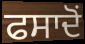
ਫਸਾਦੋਂ